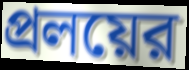
প্রলয়ের